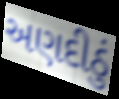
અણદીઠું